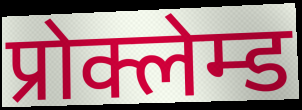
प्रोक्लेम्ड